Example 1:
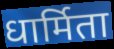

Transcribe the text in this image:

धार्मिता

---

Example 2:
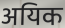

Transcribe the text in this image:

अयिक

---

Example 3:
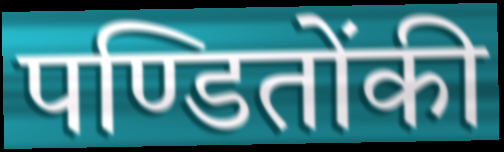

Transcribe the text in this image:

पण्डितोंकी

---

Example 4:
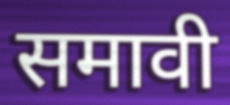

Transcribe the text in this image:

समावी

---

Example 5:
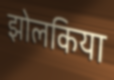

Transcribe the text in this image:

झोलकिया